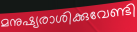
മനുഷ്യരാശിക്കുവേണ്ടി